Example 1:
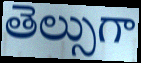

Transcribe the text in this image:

తెల్సుగా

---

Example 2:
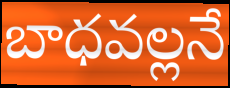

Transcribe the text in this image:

బాధవల్లనే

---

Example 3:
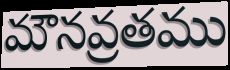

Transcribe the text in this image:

మౌనవ్రతము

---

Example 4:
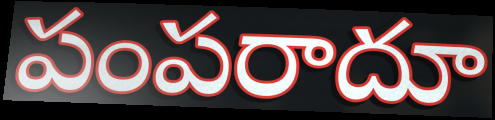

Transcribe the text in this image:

పంపరాదూ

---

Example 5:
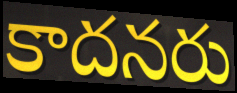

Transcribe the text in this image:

కాదనరు